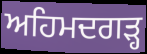
ਅਹਿਮਦਗੜ੍ਹ